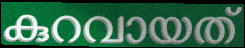
കുറവായത്